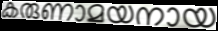
കരുണാമയനായ